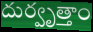
దుర్వృత్తాం